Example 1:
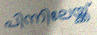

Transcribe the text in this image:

പിന്നിലേയ്ക്ക്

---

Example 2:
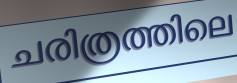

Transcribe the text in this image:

ചരിത്രത്തിലെ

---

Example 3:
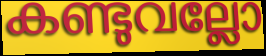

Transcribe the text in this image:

കണ്ടുവല്ലോ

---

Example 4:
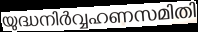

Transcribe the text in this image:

യുദ്ധനിർവ്വഹണസമിതി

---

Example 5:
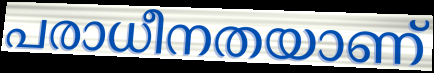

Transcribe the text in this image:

പരാധീനതയാണ്